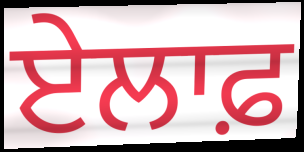
ਏਲਾਫ਼